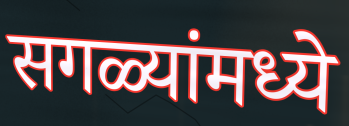
सगळ्यांमध्ये